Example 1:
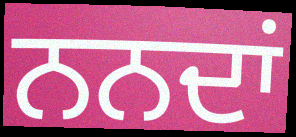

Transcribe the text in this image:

ਨਨਦਾਂ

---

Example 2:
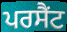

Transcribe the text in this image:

ਪਰਸੈਂਟ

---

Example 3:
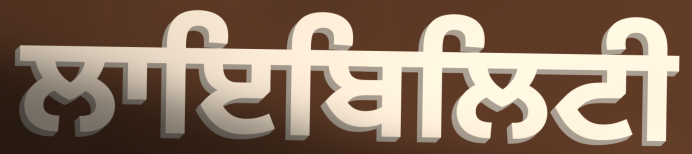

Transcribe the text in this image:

ਲਾਇਬਿਲਿਟੀ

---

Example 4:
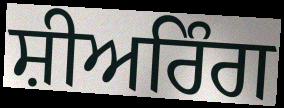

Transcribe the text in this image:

ਸ਼ੀਅਰਿੰਗ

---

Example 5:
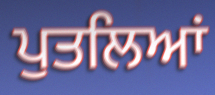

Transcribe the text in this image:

ਪੁਤਲਿਆਂ